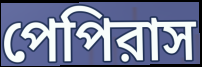
পেপিরাস